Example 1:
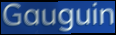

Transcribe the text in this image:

Gauguin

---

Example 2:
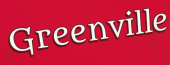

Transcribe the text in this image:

Greenville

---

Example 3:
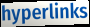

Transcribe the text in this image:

hyperlinks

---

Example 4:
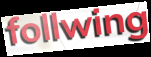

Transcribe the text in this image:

follwing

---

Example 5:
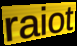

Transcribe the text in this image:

raiot